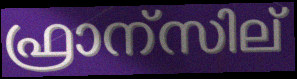
ഫ്രാന്സില്